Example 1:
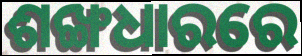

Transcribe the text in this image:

ଶଙ୍ଖଧାରରେ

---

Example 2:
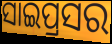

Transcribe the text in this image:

ସାଇପ୍ରସର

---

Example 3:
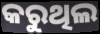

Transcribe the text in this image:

କରୁଥିଲ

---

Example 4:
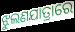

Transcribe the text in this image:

ଝୁଲଣଯାତ୍ରାରେ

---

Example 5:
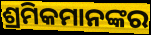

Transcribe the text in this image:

ଶ୍ରମିକମାନଙ୍କର